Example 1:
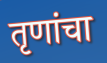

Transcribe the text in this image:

तृणांचा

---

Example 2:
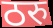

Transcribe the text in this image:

ठरु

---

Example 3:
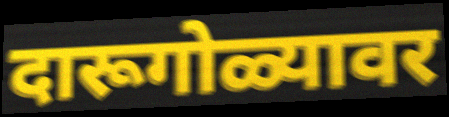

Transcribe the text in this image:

दारूगोळ्यावर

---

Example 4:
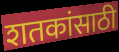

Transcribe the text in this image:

शतकांसाठी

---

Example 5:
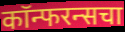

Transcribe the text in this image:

कॉन्फरन्सचा